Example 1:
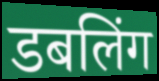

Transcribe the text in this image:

डबलिंग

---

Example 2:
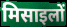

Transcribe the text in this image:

मिसाइलों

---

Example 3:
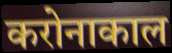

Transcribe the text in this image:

करोनाकाल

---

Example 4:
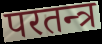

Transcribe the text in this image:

परतन्त्र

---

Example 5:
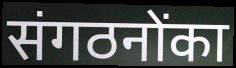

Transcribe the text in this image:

संगठनोंका